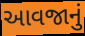
આવજાનું